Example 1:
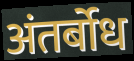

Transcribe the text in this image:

अंतर्बोध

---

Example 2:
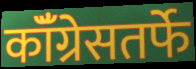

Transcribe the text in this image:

कॉँग्रेसतर्फे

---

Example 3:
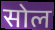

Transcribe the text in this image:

सोल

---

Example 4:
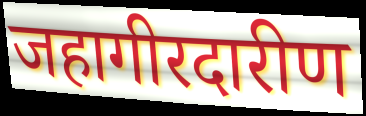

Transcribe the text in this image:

जहागीरदारीण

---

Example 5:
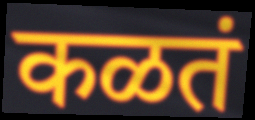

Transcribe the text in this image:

कळतं